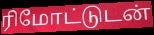
ரிமோட்டுடன்